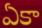
ఏకా